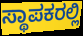
ಸ್ಥಾಪಕರಲ್ಲಿ